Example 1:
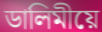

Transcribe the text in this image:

ডালিমীয়ে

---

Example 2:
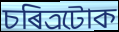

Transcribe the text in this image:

চৰিত্ৰটোক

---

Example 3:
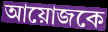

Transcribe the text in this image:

আয়োজকে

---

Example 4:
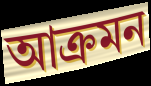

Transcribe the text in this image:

আক্ৰমন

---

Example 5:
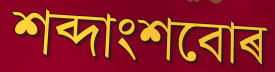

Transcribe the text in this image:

শব্দাংশবোৰ